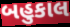
બહુકાલ